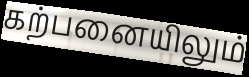
கற்பனையிலும்